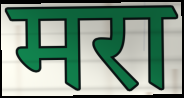
मरा